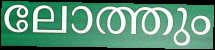
ലോത്തും